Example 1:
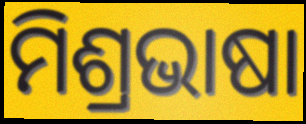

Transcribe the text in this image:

ମିଶ୍ରଭାଷା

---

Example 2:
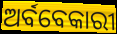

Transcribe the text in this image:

ଅର୍ବବେକାରୀ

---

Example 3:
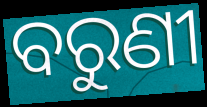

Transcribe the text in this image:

ବରୁଣୀ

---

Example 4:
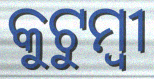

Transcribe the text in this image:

କୁଟୁମ୍ୱୀ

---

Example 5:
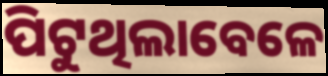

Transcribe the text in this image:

ପିଟୁଥିଲାବେଳେ